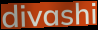
divashi